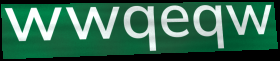
wwqeqw